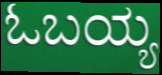
ಓಬಯ್ಯ